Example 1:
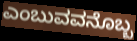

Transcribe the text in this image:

ಎಂಬುವವನೊಬ್ಬ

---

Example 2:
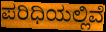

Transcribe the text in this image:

ಪರಿಧಿಯಲ್ಲಿವೆ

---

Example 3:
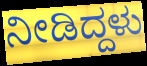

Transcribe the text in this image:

ನೀಡಿದ್ದಳು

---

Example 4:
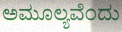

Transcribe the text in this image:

ಅಮೂಲ್ಯವೆಂದು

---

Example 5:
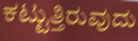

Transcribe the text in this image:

ಕಟ್ಟುತ್ತಿರುವುದು